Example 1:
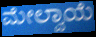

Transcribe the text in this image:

ಮೇಲ್ವಾಯೆ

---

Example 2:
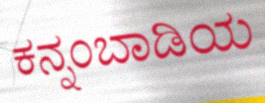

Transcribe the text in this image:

ಕನ್ನಂಬಾಡಿಯ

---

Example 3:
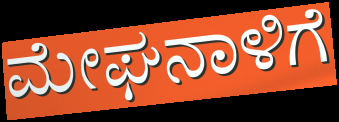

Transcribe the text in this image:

ಮೇಘನಾಳಿಗೆ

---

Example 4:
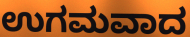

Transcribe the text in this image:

ಉಗಮವಾದ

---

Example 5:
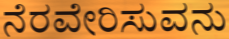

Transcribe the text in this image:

ನೆರವೇರಿಸುವನು